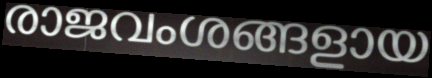
രാജവംശങ്ങളായ